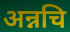
अन्नचि